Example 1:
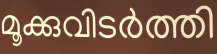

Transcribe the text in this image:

മൂക്കുവിടർത്തി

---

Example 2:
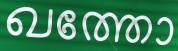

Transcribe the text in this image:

ഖത്തോ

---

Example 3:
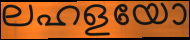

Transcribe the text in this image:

ലഹളയോ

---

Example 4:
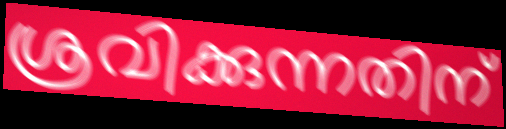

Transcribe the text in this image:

ശ്രവിക്കുന്നതിന്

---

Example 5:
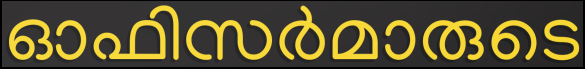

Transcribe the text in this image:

ഓഫിസർമാരുടെ